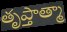
తృప్తాత్మా